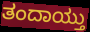
ತಂದಾಯ್ತು